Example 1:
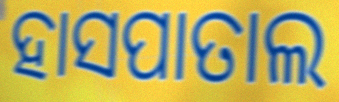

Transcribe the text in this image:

ହାସପାତାଲ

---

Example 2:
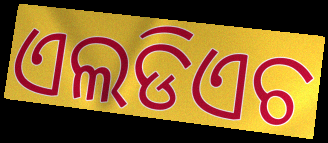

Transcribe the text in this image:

ଏଲଡିଏଚ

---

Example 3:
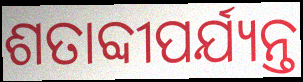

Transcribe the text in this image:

ଶତାବ୍ଦୀପର୍ଯ୍ୟନ୍ତ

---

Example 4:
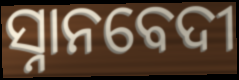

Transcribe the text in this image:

ସ୍ନାନବେଦୀ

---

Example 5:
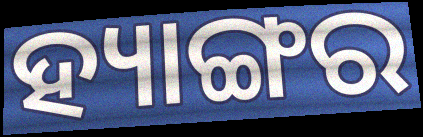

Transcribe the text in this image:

ହ୍ୟାଙ୍ଗର